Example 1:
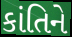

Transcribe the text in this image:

કાંતિને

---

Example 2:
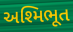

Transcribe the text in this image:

અશ્મિભૂત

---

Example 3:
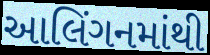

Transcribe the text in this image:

આલિંગનમાંથી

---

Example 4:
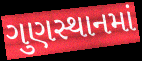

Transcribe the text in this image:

ગુણસ્થાનમાં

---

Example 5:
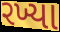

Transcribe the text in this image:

રખ્યા